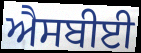
ਐਸਬੀਈ